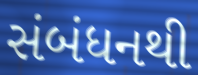
સંબંધનથી